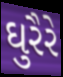
ઘુરૈરે